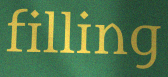
filling